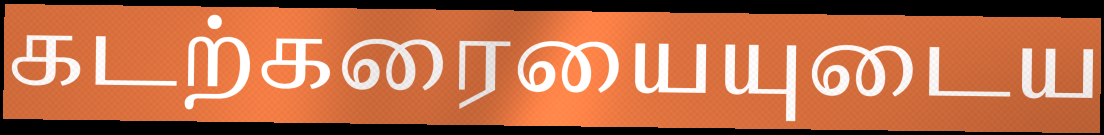
கடற்கரையையுடைய